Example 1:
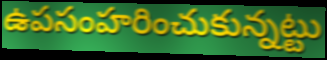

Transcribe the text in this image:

ఉపసంహరించుకున్నట్టు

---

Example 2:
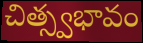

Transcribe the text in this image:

చిత్స్వభావం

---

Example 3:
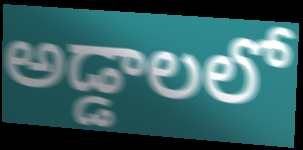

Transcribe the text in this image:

అడ్డాలలో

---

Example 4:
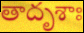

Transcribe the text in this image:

తాదృశాః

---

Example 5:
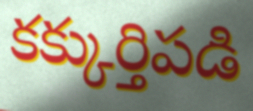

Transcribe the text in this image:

కక్కుర్తిపడి